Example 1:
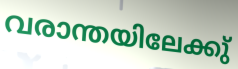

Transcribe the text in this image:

വരാന്തയിലേക്കു്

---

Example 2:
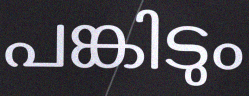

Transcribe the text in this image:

പങ്കിടും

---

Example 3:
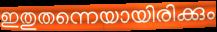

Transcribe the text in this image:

ഇതുതന്നെയായിരിക്കും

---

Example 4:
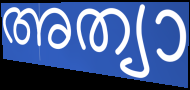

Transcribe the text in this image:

അത്യാ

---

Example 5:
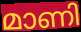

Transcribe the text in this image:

മാണി